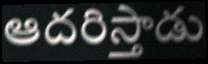
ఆదరిస్తాడు